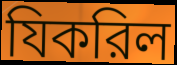
যিকরিল